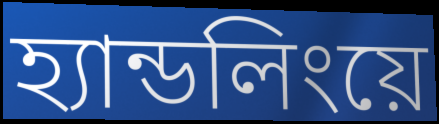
হ্যান্ডলিংয়ে